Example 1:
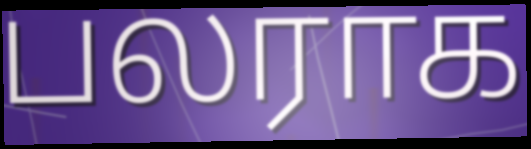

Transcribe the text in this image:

பலராக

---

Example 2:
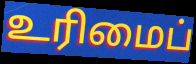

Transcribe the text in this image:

உரிமைப்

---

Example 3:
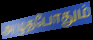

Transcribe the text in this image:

அழுதபோதும்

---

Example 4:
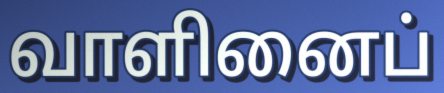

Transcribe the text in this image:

வாளினைப்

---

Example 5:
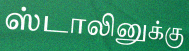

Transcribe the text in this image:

ஸ்டாலினுக்கு